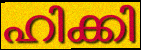
ഹിക്കി